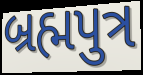
બ્રહ્મપુત્ર